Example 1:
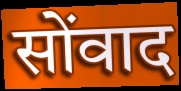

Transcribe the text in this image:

सोंवाद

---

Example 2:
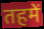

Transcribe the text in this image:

तहमें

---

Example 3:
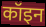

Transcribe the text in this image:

कॉइन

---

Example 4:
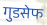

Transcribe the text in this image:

गुडसेफ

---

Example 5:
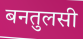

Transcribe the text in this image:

बनतुलसी